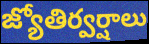
జ్యోతిర్వర్షాలు